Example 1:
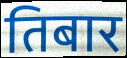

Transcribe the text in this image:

तिबार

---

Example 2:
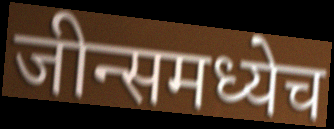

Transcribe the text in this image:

जीन्समध्येच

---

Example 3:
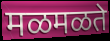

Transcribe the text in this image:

मळमळते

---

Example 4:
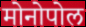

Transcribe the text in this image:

मोनोपोल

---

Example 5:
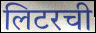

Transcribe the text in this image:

लिटरची